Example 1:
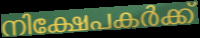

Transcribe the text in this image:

നിക്ഷേപകർക്ക്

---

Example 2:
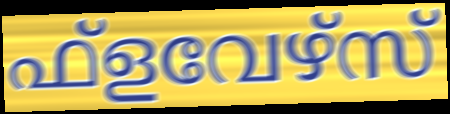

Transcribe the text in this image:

ഫ്ളവേഴ്സ്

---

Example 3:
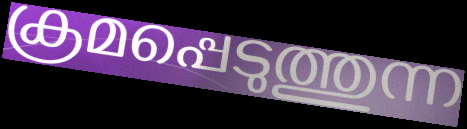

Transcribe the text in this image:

ക്രമപ്പെടുത്തുന്ന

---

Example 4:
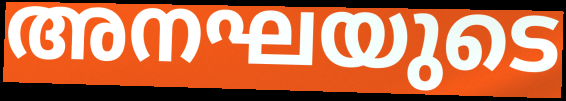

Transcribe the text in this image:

അനഘയുടെ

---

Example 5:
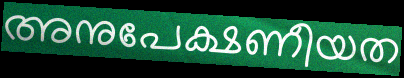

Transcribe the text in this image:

അനുപേക്ഷണീയത